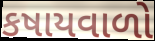
કષાયવાળો